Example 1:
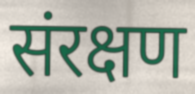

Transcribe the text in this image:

संरक्षण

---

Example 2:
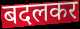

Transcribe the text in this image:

बदलकर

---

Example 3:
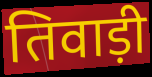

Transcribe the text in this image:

तिवाड़ी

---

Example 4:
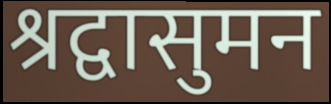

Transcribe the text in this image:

श्रद्वासुमन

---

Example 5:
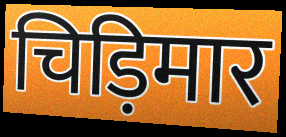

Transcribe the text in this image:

चिड़िमार